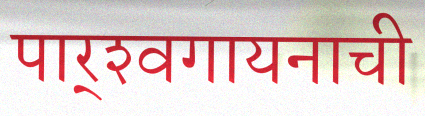
पार्श्वगायनाची